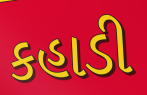
કહાડી